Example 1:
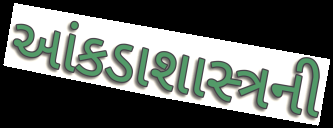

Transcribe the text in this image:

આંકડાશાસ્ત્રની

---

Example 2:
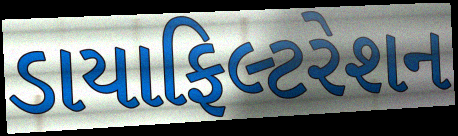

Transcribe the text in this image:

ડાયાફિલ્ટરેશન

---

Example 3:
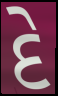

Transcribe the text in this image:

દે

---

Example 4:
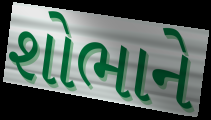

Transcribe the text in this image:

શોભાને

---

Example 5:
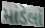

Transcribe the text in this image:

માંડેલાં